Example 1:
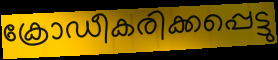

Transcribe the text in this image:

ക്രോഡീകരിക്കപ്പെട്ടു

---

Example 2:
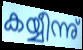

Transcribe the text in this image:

കയ്യീന്നു്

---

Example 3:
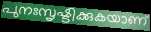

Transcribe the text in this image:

പുനഃസൃഷ്ടിക്കുകയാണ്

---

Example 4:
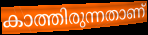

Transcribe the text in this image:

കാത്തിരുന്നതാണ്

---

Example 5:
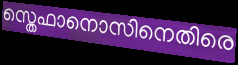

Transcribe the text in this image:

സ്തെഫാനൊസിനെതിരെ